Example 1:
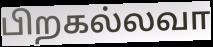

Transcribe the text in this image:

பிறகல்லவா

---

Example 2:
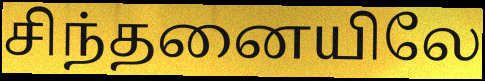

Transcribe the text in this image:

சிந்தனையிலே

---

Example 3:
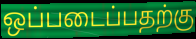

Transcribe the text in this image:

ஒப்படைப்பதற்கு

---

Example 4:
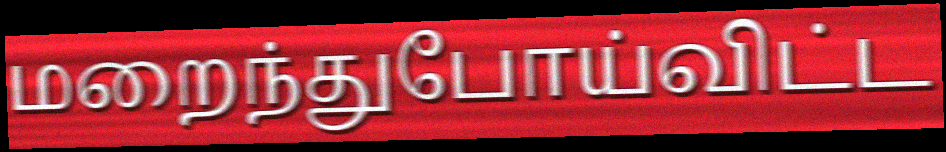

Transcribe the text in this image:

மறைந்துபோய்விட்ட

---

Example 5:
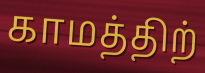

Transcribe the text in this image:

காமத்திற்